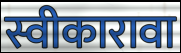
स्वीकारावा